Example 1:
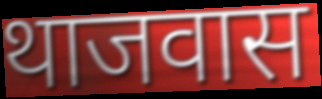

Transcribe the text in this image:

थाजवास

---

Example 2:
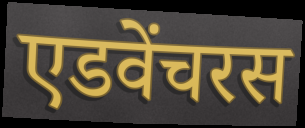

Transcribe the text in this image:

एडवेंचरस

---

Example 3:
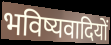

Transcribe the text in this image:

भविष्यवादियों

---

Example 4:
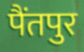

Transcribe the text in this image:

पैंतपुर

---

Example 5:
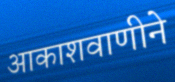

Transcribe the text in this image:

आकाशवाणीने